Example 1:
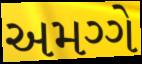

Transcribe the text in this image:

અમગ્ગે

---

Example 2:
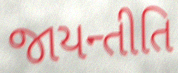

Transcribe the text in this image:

જાયન્તીતિ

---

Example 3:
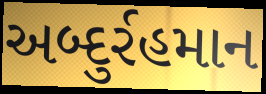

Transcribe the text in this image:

અબ્દુર્રહમાન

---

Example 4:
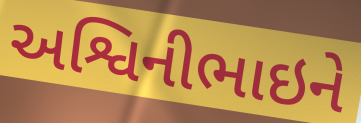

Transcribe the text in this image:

અશ્વિનીભાઇને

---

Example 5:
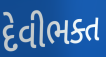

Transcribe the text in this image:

દેવીભક્ત